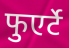
फुएर्टे